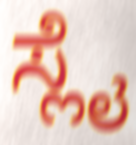
ಸ್ಲೈ